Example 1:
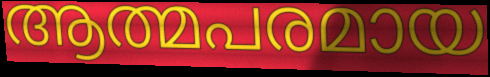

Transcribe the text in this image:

ആത്മപരമായ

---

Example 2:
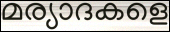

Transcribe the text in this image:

മര്യാദകളെ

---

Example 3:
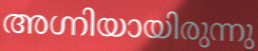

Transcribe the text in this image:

അഗ്നിയായിരുന്നു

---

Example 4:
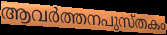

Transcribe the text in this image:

ആവർത്തനപുസ്തകം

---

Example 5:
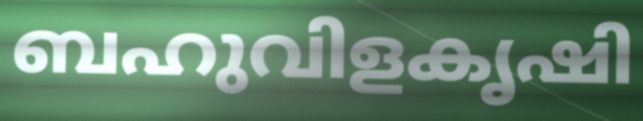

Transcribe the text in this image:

ബഹുവിളകൃഷി